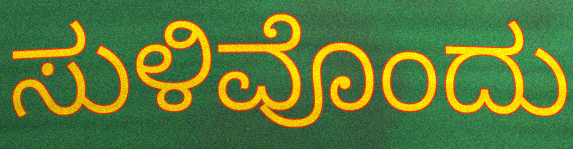
ಸುಳಿವೊಂದು